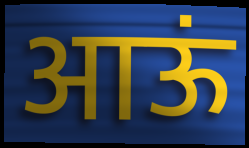
आऊं